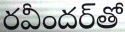
రవీందర్‌తో